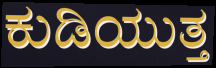
ಕುಡಿಯುತ್ತ